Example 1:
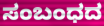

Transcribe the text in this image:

ಸಂಬಂಧದ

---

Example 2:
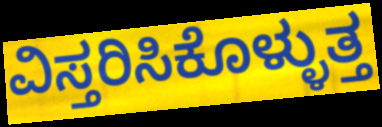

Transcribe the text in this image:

ವಿಸ್ತರಿಸಿಕೊಳ್ಳುತ್ತ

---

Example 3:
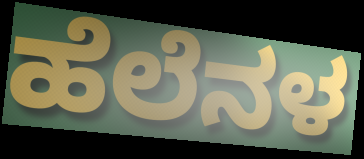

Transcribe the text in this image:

ಹೆಲೆನಳ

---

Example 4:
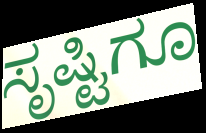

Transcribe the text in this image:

ಸೃಷ್ಟಿಗೂ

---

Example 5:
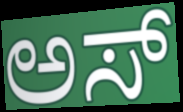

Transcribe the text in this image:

ಅಸ್